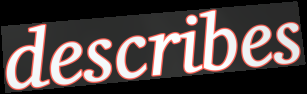
describes